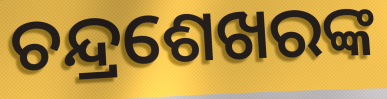
ଚନ୍ଦ୍ରଶେଖରଙ୍କ